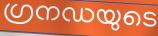
ഗ്രനഡയുടെ